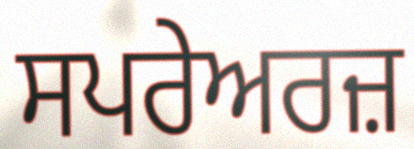
ਸਪਰੇਅਰਜ਼